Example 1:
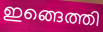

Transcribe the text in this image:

ഇങ്ങെത്തി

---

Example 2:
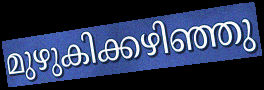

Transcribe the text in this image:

മുഴുകിക്കഴിഞ്ഞു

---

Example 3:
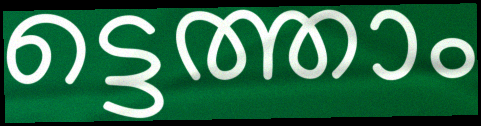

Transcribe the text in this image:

ട്ടെത്താം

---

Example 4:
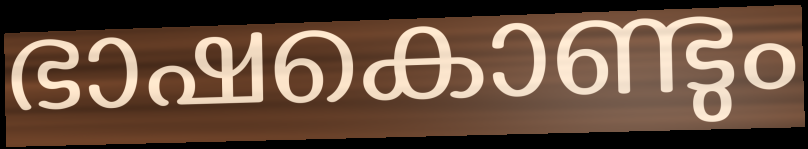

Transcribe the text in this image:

ഭാഷകൊണ്ടും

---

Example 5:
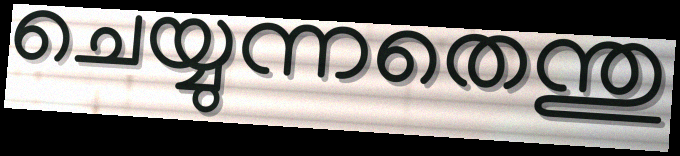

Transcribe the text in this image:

ചെയ്യുന്നതെന്തു